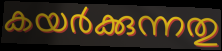
കയർക്കുന്നതു